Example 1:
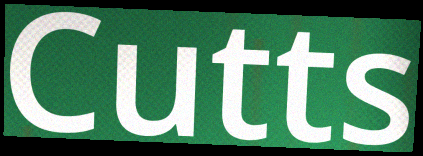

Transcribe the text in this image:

Cutts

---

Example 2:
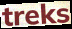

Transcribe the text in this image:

treks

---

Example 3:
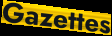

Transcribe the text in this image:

Gazettes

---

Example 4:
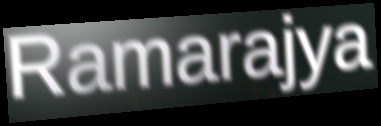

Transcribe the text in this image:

Ramarajya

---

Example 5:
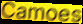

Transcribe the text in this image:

Camoes